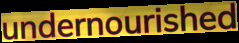
undernourished